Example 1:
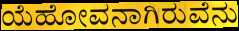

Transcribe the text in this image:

ಯೆಹೋವನಾಗಿರುವೆನು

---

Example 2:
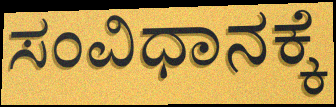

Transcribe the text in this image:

ಸಂವಿಧಾನಕ್ಕೆ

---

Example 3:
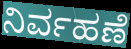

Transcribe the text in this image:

ನಿರ್ವಹಣೆ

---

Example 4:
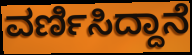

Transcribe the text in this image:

ವರ್ಣಿಸಿದ್ದಾನೆ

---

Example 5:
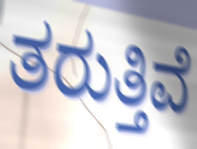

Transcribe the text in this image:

ತರುತ್ತಿವೆ